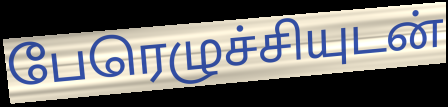
பேரெழுச்சியுடன்